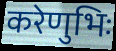
करेणुभिः